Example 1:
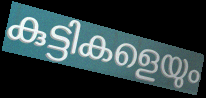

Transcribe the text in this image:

കുട്ടികളെയും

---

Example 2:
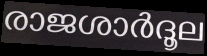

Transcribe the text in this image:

രാജശാർദൂല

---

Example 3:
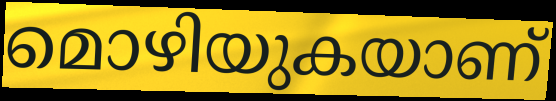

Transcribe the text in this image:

മൊഴിയുകയാണ്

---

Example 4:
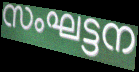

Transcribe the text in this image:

സംഘട്ടന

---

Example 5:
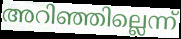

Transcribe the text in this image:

അറിഞ്ഞില്ലെന്ന്